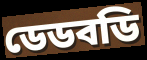
ডেডবডি